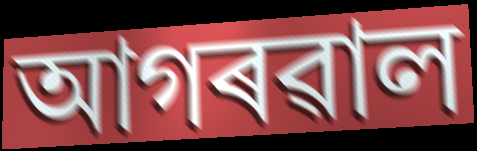
আগৰৱাল